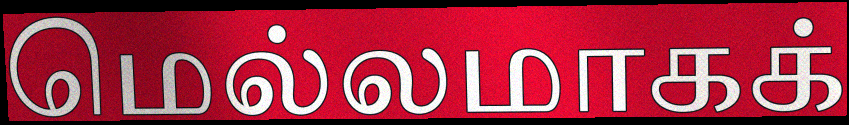
மெல்லமாகக்